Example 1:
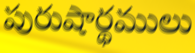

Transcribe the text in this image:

పురుషార్థములు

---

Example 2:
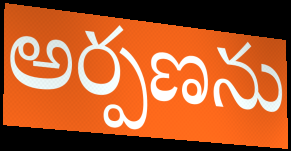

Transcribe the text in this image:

అర్పణను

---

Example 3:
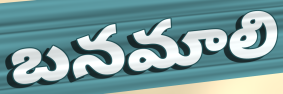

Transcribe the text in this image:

బనమాలి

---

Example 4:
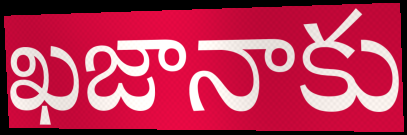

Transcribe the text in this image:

ఖజానాకు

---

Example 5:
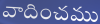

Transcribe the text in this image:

వాదించము